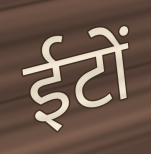
ईटों